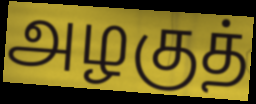
அழகுத்